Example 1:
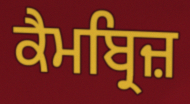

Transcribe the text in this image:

ਕੈਮਬ੍ਰਿਜ਼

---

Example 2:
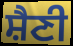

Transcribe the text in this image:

ਸ਼ੈਣੀ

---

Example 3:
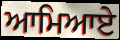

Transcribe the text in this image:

ਆਮਿਆਏ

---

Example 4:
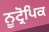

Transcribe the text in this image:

ਨੂਟ੍ਰੋਪਿਕ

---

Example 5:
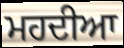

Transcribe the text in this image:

ਮਹਦੀਆ